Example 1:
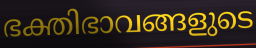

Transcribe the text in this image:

ഭക്തിഭാവങ്ങളുടെ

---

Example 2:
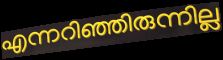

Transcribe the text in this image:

എന്നറിഞ്ഞിരുന്നില്ല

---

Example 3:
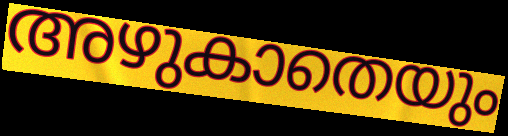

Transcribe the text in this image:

അഴുകാതെയും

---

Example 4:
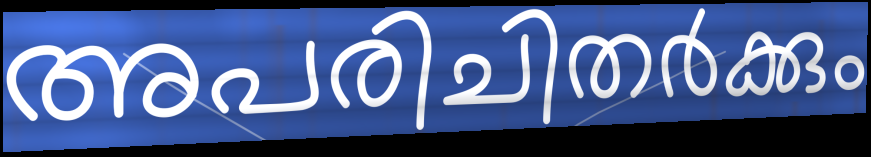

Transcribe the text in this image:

അപരിചിതർക്കും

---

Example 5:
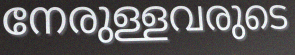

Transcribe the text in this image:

നേരുള്ളവരുടെ